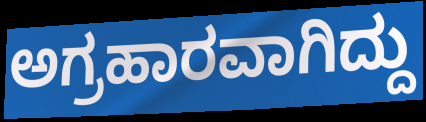
ಅಗ್ರಹಾರವಾಗಿದ್ದು